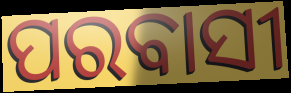
ପରବାସୀ